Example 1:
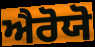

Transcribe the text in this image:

ਐਰੋਯੋ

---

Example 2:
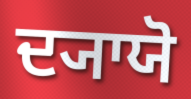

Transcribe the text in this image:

ਦ੍ਯਾਯੋ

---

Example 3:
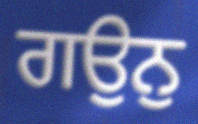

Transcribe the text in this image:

ਗਉਨੁ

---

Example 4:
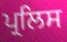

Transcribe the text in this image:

ਪ੍ਰਲਿਸ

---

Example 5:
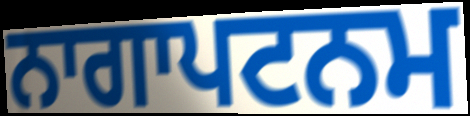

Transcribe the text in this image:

ਨਾਗਾਪਟਨਮ